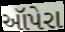
ઑપેરા